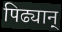
पिढ्यान्